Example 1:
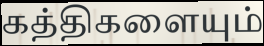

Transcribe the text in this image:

கத்திகளையும்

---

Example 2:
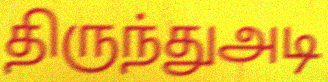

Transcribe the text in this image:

திருந்துஅடி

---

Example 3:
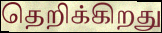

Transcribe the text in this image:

தெறிக்கிறது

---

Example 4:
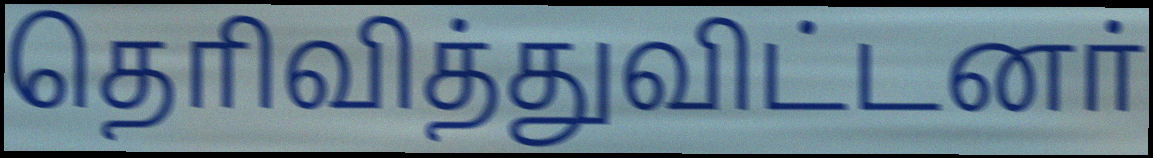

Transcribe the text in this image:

தெரிவித்துவிட்டனர்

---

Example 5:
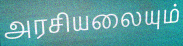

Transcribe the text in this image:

அரசியலையும்